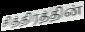
சித்திரத்தின்